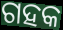
ଗହକ